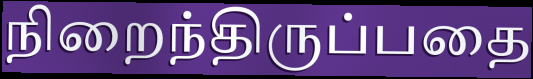
நிறைந்திருப்பதை